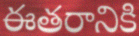
ఈతరానికి